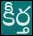
కీర్త